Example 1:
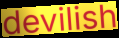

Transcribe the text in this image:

devilish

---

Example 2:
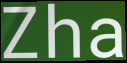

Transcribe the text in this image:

Zha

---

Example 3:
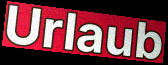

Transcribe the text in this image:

Urlaub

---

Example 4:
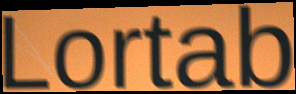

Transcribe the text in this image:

Lortab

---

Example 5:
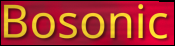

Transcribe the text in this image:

Bosonic